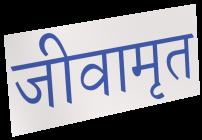
जीवामृत